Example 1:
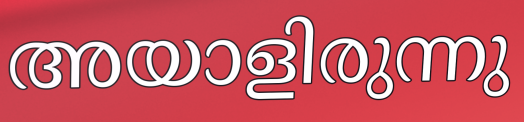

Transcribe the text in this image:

അയാളിരുന്നു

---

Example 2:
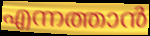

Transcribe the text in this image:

എന്നത്താൻ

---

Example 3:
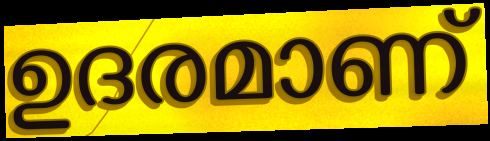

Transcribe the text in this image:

ഉദരമാണ്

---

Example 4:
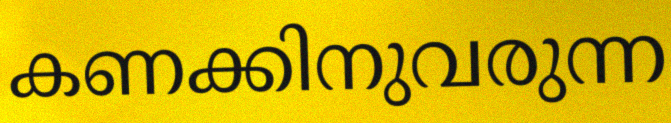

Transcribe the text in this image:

കണക്കിനുവരുന്ന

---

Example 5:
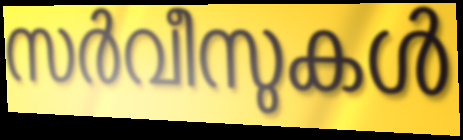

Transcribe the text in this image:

സർവീസുകൾ